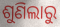
ଶୁଣିଲାରୁ